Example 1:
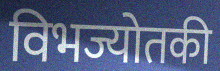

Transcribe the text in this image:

विभज्योतकी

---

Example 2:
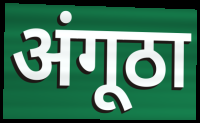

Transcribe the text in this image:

अंगूठा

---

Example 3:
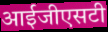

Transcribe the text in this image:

आईजीएसटी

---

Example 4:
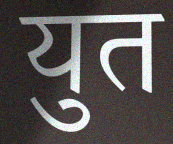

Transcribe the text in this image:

युत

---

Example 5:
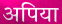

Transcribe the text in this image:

अपिया